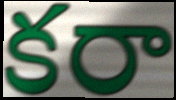
కరా